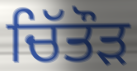
ਚਿੱਤੌੜ